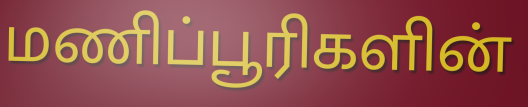
மணிப்பூரிகளின்